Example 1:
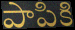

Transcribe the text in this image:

పాపికి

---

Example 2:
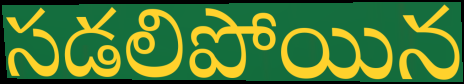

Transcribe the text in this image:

సడలిపోయిన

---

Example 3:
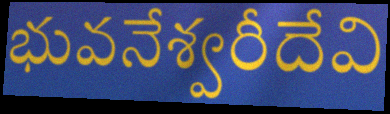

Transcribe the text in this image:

భువనేశ్వరీదేవి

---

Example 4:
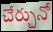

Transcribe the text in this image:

చేర్చునో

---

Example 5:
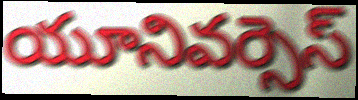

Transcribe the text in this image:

యూనివర్సెస్